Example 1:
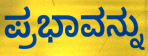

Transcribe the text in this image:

ಪ್ರಭಾವನ್ನು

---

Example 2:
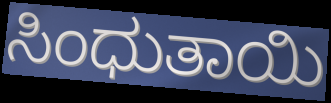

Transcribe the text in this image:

ಸಿಂಧುತಾಯಿ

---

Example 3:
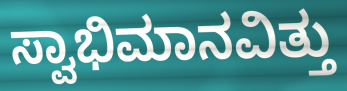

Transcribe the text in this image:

ಸ್ವಾಭಿಮಾನವಿತ್ತು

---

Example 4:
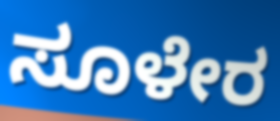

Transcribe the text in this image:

ಸೂಳೇರ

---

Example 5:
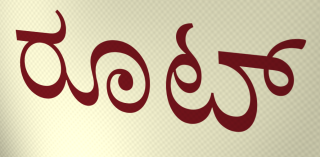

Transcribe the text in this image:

ರೂಟ್